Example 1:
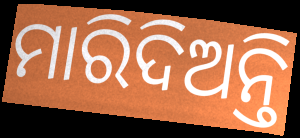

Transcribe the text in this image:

ମାରିଦିଅନ୍ତି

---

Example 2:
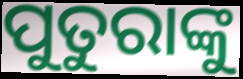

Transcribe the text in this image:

ପୁତୁରାଙ୍କୁ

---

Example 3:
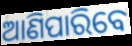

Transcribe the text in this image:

ଆଣିପାରିବେ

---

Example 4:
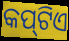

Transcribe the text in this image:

କପ୍‌ଟିଏ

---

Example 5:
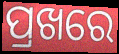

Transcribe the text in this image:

ପ୍ରଖରେ